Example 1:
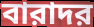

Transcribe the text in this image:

বারাদর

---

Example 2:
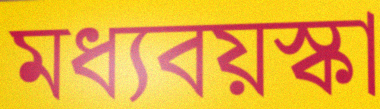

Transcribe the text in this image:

মধ্যবয়স্কা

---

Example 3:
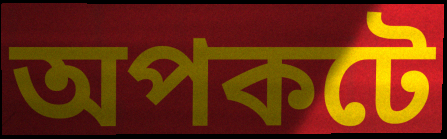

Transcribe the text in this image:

অপকটে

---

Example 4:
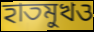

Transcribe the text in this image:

হাতমুখও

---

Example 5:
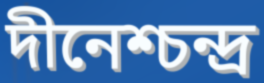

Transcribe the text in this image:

দীনেশ্চন্দ্র